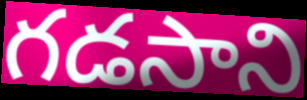
గడసాని